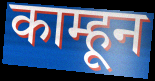
काम्हून